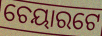
ଚେୟାରଟେ